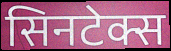
सिनटेक्स